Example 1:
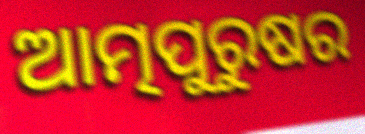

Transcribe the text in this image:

ଆତ୍ମପୁରୁଷର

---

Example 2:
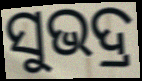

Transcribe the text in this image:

ସୁଭଦ୍ର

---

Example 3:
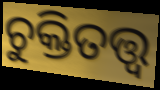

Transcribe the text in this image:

ଚୁକ୍ତିତତ୍ତ୍ଵ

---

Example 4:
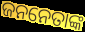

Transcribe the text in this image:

ଜନନେତାଙ୍କ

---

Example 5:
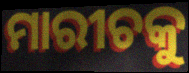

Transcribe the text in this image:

ମାରୀଚକୁ